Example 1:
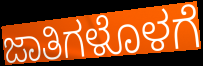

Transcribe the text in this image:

ಜಾತಿಗಳೊಳಗೆ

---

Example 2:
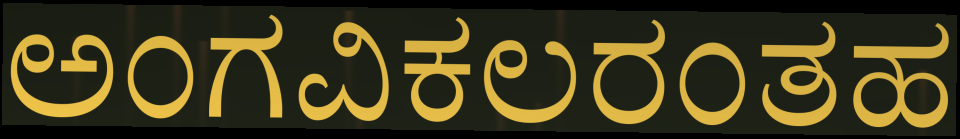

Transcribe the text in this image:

ಅಂಗವಿಕಲರಂತಹ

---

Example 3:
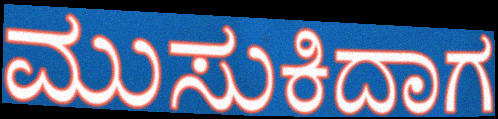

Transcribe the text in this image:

ಮುಸುಕಿದಾಗ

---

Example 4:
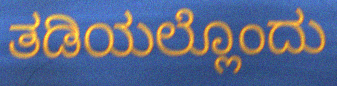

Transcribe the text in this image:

ತಡಿಯಲ್ಲೊಂದು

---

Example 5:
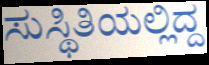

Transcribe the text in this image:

ಸುಸ್ಥಿತಿಯಲ್ಲಿದ್ದ